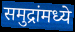
समुद्रांमध्ये